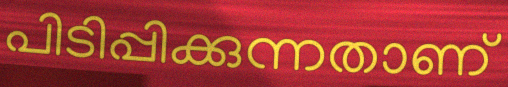
പിടിപ്പിക്കുന്നതാണ്